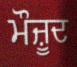
ਮੌਜ਼ੂਦ